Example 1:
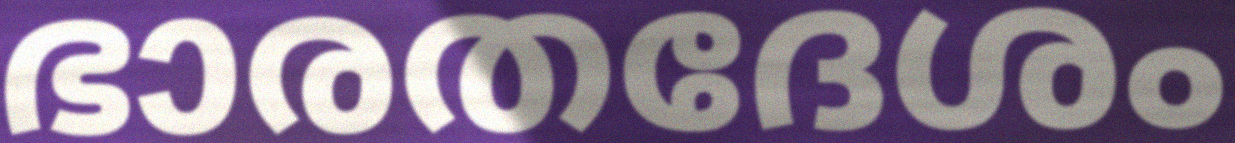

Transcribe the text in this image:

ഭാരതദേശം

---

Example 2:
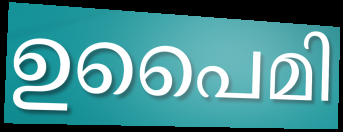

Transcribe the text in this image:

ഉപൈമി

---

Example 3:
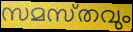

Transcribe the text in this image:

സമസ്‌തവും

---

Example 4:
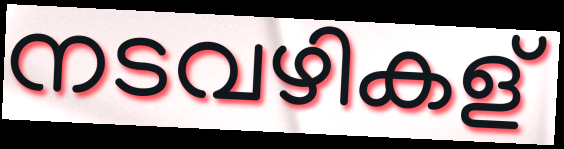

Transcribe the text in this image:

നടവഴികള്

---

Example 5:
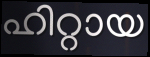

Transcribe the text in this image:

ഹിറ്റായ